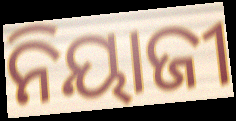
ନିୟାଜୀ